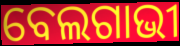
ବେଲଗାଭୀ